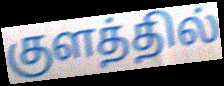
குளத்தில்